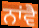
ਨਾਂਵੈ